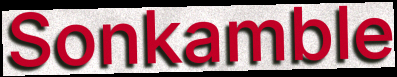
Sonkamble